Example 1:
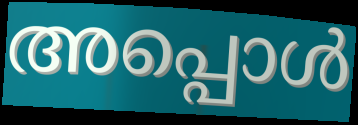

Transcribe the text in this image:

അപ്പൊൾ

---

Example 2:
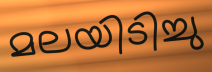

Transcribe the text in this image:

മലയിടിച്ചു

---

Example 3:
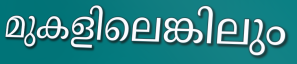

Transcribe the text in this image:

മുകളിലെങ്കിലും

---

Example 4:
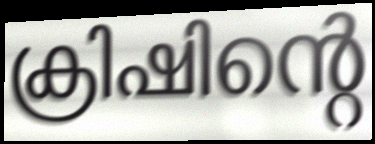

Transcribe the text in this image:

ക്രിഷിന്റെ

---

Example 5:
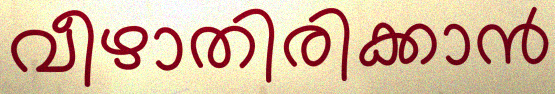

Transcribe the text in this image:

വീഴാതിരിക്കാൻ